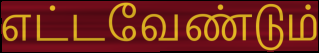
எட்டவேண்டும்